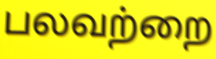
பலவற்றை